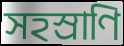
সহস্রাণি